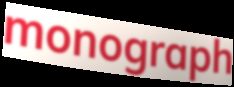
monograph